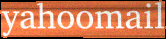
yahoomail